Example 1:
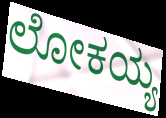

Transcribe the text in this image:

ಲೋಕಯ್ಯ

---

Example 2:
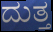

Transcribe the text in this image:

ದುತ್ತ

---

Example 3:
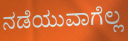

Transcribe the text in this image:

ನಡೆಯುವಾಗೆಲ್ಲ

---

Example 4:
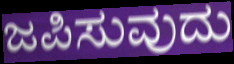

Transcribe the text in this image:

ಜಪಿಸುವುದು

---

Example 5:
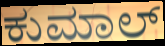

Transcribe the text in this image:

ಕುಮಾಲ್